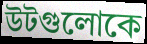
উটগুলোকে